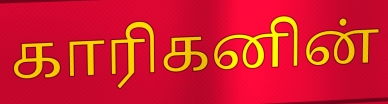
காரிகனின்